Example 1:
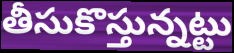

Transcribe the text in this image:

తీసుకొస్తున్నట్టు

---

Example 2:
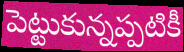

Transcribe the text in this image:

పెట్టుకున్నప్పటికీ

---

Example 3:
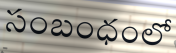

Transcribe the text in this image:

సంబంధంలో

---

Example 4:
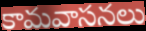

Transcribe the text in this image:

కామవాసనలు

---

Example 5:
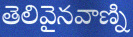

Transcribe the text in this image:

తెలివైనవాణ్ని